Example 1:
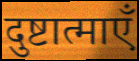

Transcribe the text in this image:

दुष्टात्माएँ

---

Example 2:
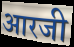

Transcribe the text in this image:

आरजी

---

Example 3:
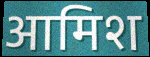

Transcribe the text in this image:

आमिश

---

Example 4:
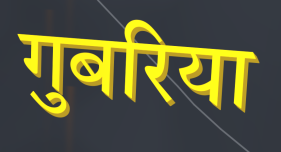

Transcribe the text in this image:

गुबरिया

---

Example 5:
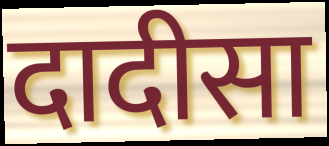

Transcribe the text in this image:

दादीसा